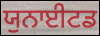
ਯੁਨਾਈਟਡ